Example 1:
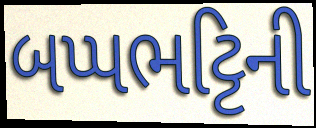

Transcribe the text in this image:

બપ્પભટ્ટિની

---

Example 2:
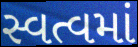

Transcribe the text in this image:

સ્વત્વમાં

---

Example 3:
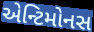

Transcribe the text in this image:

એન્ટિમોનસ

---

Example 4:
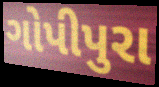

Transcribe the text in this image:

ગોપીપુરા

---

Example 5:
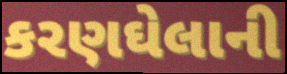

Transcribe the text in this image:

કરણઘેલાની